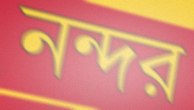
নন্দর